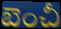
బెంచీ